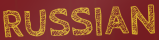
RUSSIAN